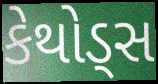
કેથોડ્સ